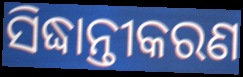
ସିଦ୍ଧାନ୍ତୀକରଣ